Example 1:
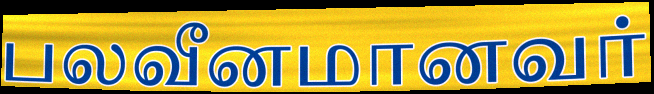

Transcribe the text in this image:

பலவீனமானவர்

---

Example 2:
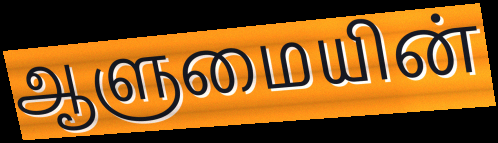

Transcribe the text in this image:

ஆளுமையின்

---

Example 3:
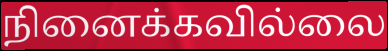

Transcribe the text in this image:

நினைக்கவில்லை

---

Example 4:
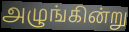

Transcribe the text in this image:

அழுங்கின்று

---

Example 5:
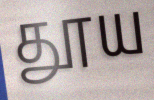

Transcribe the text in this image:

தூய